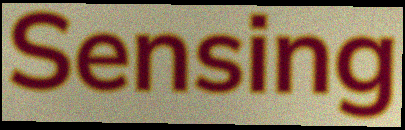
Sensing